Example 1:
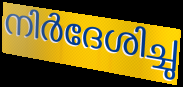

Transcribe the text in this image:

നിർദേശിച്ചു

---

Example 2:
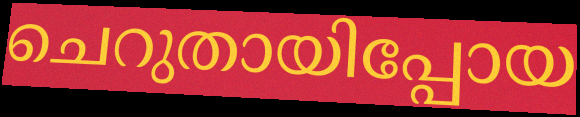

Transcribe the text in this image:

ചെറുതായിപ്പോയ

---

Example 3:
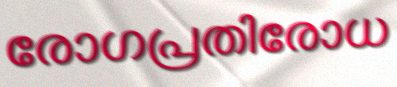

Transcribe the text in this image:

രോഗപ്രതിരോധ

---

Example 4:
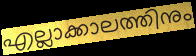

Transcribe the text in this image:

എല്ലാക്കാലത്തിനും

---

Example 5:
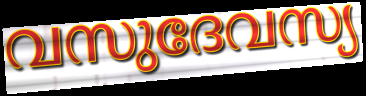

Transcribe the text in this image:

വസുദേവസ്യ